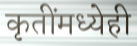
कृतींमध्येही